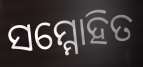
ସମ୍ମୋହିତ